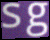
sg